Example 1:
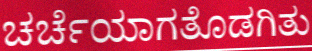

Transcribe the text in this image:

ಚರ್ಚೆಯಾಗತೊಡಗಿತು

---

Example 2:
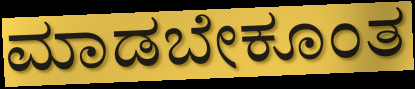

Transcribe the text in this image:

ಮಾಡಬೇಕೂಂತ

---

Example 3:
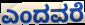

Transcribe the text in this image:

ಎಂದವರೆ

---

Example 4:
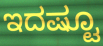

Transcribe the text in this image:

ಇದಷ್ಟೂ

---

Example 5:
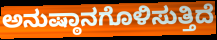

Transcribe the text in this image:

ಅನುಷ್ಠಾನಗೊಳಿಸುತ್ತಿದೆ